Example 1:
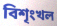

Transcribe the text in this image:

বিশৃংখল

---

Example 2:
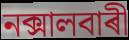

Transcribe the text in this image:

নক্সালবাৰী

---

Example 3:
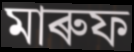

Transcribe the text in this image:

মাৰুফ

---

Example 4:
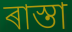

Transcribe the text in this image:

ৰাস্তা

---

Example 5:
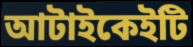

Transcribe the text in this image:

আটাইকেইটি